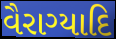
વૈરાગ્યાદિ